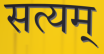
सत्यम्